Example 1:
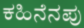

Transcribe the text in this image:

ಕಹಿನೆನಪು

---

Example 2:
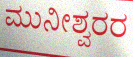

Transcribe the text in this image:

ಮುನೀಶ್ವರರ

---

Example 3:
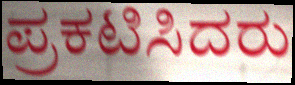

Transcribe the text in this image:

ಪ್ರಕಟಿಸಿದರು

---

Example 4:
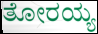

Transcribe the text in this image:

ತೋರಯ್ಯ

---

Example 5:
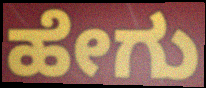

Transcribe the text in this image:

ಹೇಗು